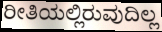
ರೀತಿಯಲ್ಲಿರುವುದಿಲ್ಲ